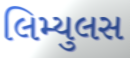
લિમ્યુલસ